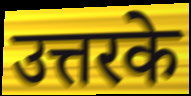
उत्तरके